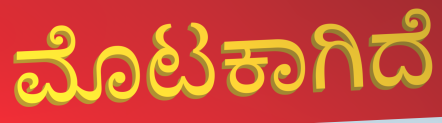
ಮೊಟಕಾಗಿದೆ